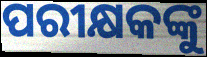
ପରୀକ୍ଷକଙ୍କୁ